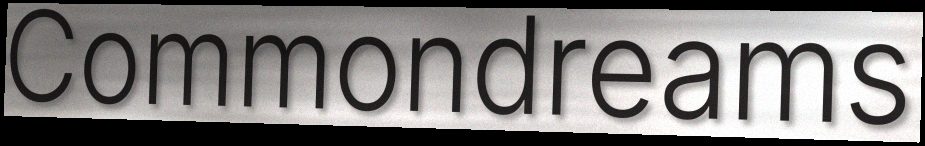
Commondreams